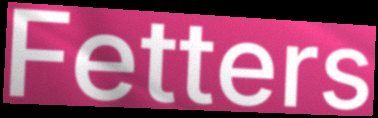
Fetters